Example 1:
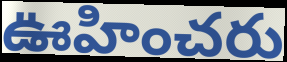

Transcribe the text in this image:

ఊహించరు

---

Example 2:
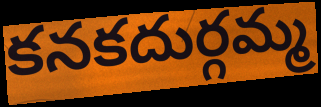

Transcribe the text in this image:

కనకదుర్గమ్మ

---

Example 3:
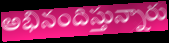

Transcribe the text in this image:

అభినందిస్తున్నారు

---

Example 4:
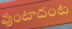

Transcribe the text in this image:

వుంటాదంట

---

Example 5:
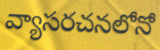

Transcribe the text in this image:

వ్యాసరచనలోనో